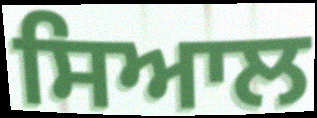
ਸਿਆਲ